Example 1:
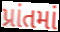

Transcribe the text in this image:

પ્રાંતમાં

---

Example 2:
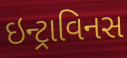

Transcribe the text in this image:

ઇન્ટ્રાવિનસ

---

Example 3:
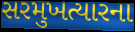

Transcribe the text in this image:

સરમુખત્યારના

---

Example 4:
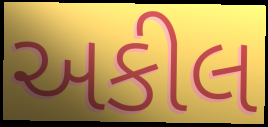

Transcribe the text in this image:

અકીલ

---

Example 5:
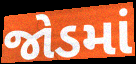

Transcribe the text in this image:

જોડમાં